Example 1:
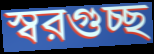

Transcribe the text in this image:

স্বরগুচ্ছ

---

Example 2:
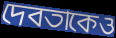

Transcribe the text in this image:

দেবতাকেও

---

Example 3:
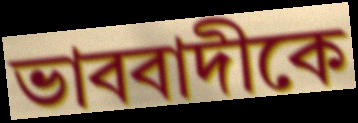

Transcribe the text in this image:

ভাববাদীকে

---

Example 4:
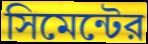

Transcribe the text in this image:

সিমেন্টের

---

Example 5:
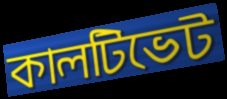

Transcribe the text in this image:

কালটিভেট